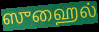
ஸுஹைல்